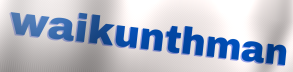
waikunthman